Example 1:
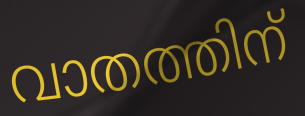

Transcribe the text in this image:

വാതത്തിന്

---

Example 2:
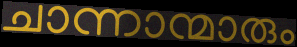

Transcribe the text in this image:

ചാന്നാന്മാരും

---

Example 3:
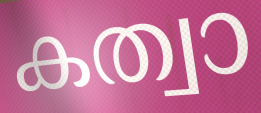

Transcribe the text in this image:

കത്വാ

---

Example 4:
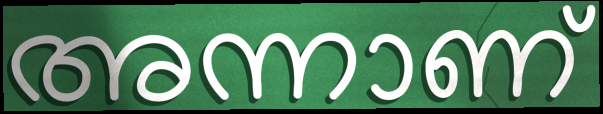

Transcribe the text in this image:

അന്നാണ്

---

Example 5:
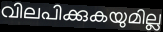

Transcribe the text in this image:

വിലപിക്കുകയുമില്ല